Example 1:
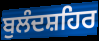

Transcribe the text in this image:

ਬੁਲੰਦਸ਼ਹਿਰ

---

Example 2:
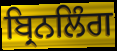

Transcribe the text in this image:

ਬ੍ਰਿਨਲਿੰਗ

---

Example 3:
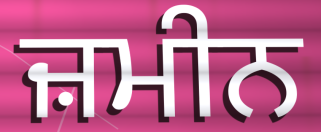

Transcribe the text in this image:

ਜ਼ਮੀਨ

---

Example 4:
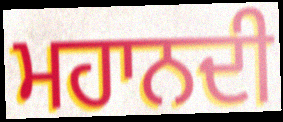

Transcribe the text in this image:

ਮਹਾਨਦੀ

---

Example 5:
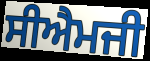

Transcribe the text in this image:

ਸੀਐਮਜੀ